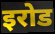
इरोड